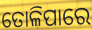
ତୋଳିପାରେ